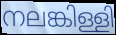
നലങ്കിള്ളി